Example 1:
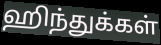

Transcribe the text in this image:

ஹிந்துக்கள்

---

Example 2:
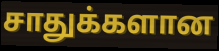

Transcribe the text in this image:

சாதுக்களான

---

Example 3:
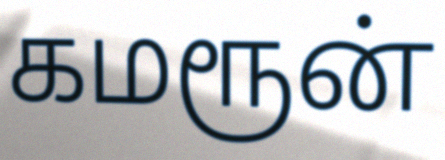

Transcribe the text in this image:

கமரூன்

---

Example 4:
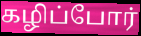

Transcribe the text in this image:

கழிப்போர்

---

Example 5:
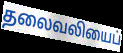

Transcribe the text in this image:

தலைவலியைப்